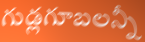
గుడ్లగూబలన్నీ